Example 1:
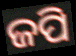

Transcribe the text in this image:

ଜପି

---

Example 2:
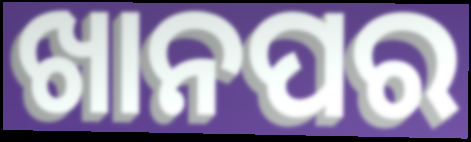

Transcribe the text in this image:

ଖାନପର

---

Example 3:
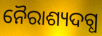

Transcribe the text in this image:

ନୈରାଶ୍ୟଦଗ୍ଧ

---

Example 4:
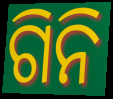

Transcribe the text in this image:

ଗିନି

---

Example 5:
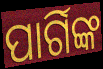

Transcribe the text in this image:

ପାର୍ଗିଙ୍କ